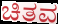
ಚಿತವ